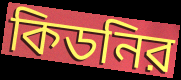
কিডনির